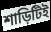
শাড়িটিই